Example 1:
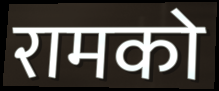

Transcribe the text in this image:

रामको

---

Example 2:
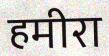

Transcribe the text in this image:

हमीरा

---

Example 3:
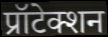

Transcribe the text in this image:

प्रॉटेक्शन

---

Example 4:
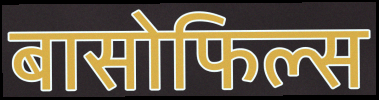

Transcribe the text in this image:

बासोफिल्स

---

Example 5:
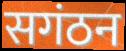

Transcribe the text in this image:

सगंठन